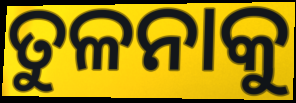
ତୁଳନାକୁ